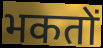
भकतों